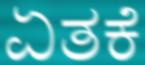
ಏತಕೆ